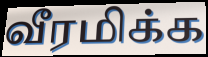
வீரமிக்க